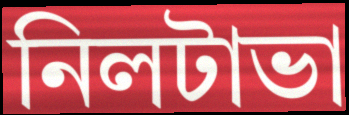
নিলটাভা